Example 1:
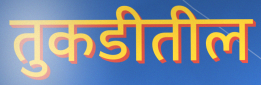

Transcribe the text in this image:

तुकडीतील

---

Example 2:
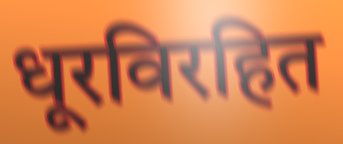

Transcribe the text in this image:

धूरविरहित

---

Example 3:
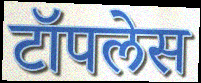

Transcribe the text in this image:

टॉपलेस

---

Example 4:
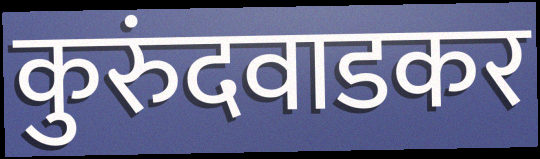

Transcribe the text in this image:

कुरुंदवाडकर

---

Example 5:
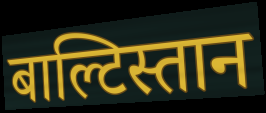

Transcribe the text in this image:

बाल्टिस्तान